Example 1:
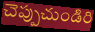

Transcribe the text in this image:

చెప్పుచుండిరి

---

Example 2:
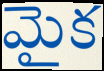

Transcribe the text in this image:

మైక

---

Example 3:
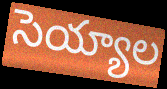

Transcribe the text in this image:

సెయ్యాల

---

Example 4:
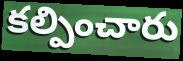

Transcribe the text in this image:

కల్పించారు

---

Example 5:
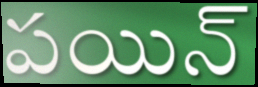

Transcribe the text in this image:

పయిన్